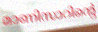
മാണിസാറിന്റെ